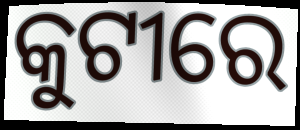
କୁଟୀରେ